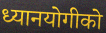
ध्यानयोगीको